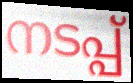
നടപ്പ്